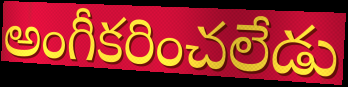
అంగీకరించలేడు